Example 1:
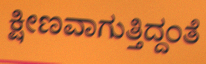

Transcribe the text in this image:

ಕ್ಷೀಣವಾಗುತ್ತಿದ್ದಂತೆ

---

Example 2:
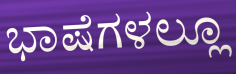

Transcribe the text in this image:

ಭಾಷೆಗಳಲ್ಲೂ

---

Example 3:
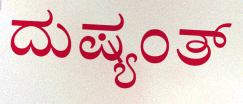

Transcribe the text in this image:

ದುಷ್ಯಂತ್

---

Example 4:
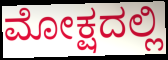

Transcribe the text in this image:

ಮೋಕ್ಷದಲ್ಲಿ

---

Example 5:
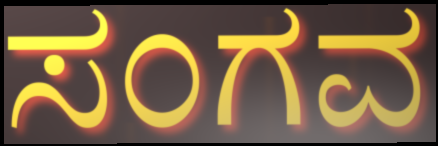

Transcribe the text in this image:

ಸಂಗವ